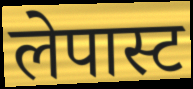
लेपास्ट